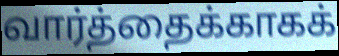
வார்த்தைக்காகக்